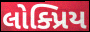
લોક્પ્રિય